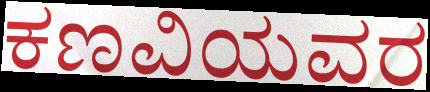
ಕಣವಿಯವರ